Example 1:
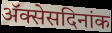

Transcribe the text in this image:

ॲक्सेसदिनांक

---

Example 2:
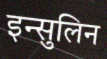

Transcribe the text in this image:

इन्सुलिन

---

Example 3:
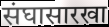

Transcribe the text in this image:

संघासारखा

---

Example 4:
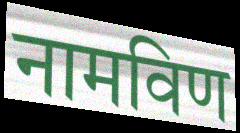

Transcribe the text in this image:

नामविण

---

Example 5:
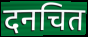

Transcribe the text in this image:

दनचित